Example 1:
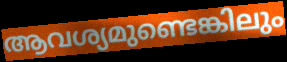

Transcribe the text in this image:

ആവശ്യമുണ്ടെങ്കിലും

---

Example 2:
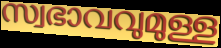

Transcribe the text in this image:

സ്വഭാവവുമുള്ള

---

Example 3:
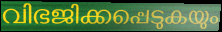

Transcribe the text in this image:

വിഭജിക്കപ്പെടുകയും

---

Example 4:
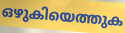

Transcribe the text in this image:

ഒഴുകിയെത്തുക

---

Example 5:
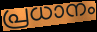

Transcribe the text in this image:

പ്രധാനം